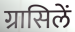
ग्रासिलें